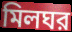
মিলঘর